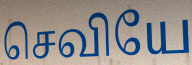
செவியே